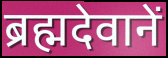
ब्रह्मदेवानें